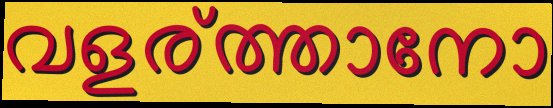
വളര്ത്താനോ